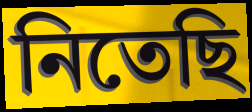
নিতেছি